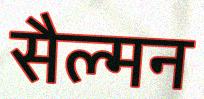
सैल्मन